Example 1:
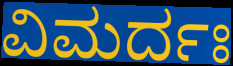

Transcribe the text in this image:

ವಿಮರ್ದಃ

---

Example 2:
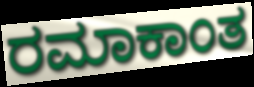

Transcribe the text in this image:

ರಮಾಕಾಂತ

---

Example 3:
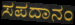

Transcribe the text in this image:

ಸಪದಾನಂ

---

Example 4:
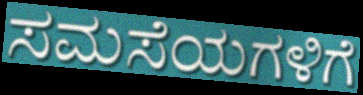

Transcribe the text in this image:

ಸಮಸೆಯಗಳಿಗೆ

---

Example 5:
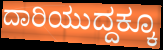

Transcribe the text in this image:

ದಾರಿಯುದ್ದಕ್ಕೂ